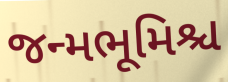
જન્મભૂમિશ્ચ